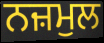
ਨਜ਼ਮੁਲ